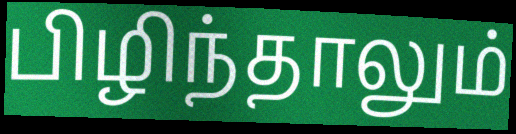
பிழிந்தாலும்